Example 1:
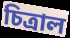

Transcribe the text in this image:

চিত্রাল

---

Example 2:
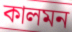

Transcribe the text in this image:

কালমন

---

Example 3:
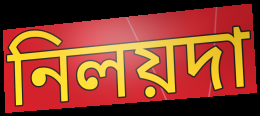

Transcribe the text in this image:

নিলয়দা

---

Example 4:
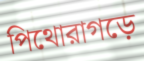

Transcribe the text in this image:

পিথোরাগড়ে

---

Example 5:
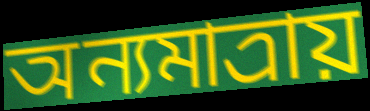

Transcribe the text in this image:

অন্যমাত্রায়